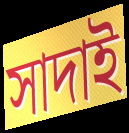
সাদাই